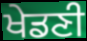
ਖੇਡਣੀ